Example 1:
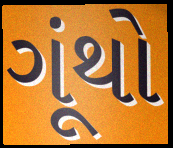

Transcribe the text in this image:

ગૂંથો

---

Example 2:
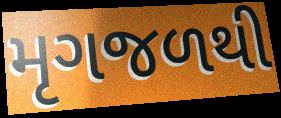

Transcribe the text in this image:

મૃગજળથી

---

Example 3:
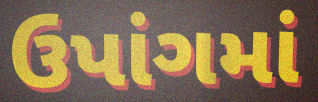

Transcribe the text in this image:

ઉપાંગમાં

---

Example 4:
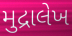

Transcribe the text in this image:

મુદ્રાલેખ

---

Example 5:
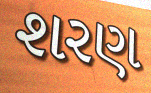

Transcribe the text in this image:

શરણ